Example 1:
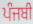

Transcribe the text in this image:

ਪੰਜਬੀ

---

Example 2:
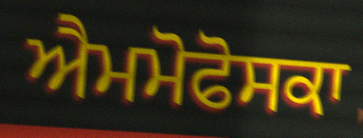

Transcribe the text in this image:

ਐਮਮੋਫੋਸਕਾ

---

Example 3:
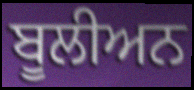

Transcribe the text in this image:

ਬੂਲੀਅਨ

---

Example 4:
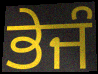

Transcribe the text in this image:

ਭੇਜੰ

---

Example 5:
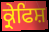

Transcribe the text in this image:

ਕ੍ਰੇਫਿਸ਼